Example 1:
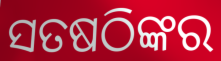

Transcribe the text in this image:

ସତଷଠିଙ୍କର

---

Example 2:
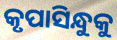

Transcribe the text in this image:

କୃପାସିନ୍ଧୁକୁ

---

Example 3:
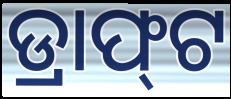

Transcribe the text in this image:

ଡ୍ରାଫ୍‍ଟ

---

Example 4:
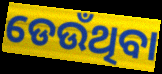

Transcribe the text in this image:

ଡେଉଁଥିବା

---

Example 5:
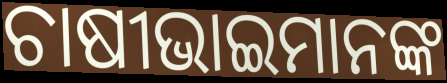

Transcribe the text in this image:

ଚାଷୀଭାଇମାନଙ୍କ